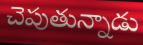
చెపుతున్నాడు